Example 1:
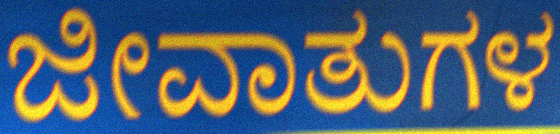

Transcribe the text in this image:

ಜೀವಾತುಗಳ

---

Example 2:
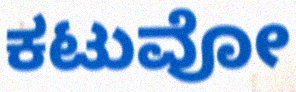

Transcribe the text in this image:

ಕಟುವೋ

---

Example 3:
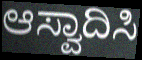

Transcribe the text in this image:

ಆಸ್ವಾದಿಸಿ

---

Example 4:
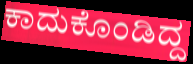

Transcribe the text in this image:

ಕಾದುಕೊಂಡಿದ್ದ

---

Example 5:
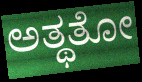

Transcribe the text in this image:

ಅತ್ಥತೋ